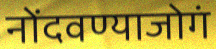
नोंदवण्याजोगं